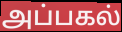
அப்பகல்